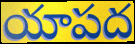
యాపద